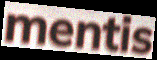
mentis